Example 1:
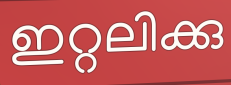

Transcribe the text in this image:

ഇറ്റലിക്കു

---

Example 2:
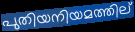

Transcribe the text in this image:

പുതിയനിയമത്തില്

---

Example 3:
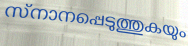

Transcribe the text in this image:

സ്‌നാനപ്പെടുത്തുകയും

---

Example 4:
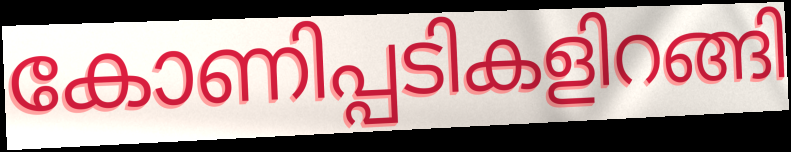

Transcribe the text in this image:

കോണിപ്പടികളിറങ്ങി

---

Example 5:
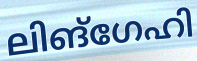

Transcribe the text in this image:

ലിങ്ഗേഹി